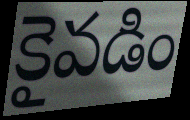
కైవడిం